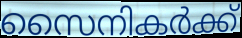
സൈനികർക്ക്